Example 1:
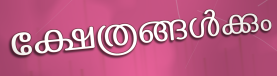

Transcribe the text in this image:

ക്ഷേത്രങ്ങൾക്കും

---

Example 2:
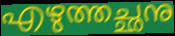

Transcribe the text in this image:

എഴുത്തച്ഛനു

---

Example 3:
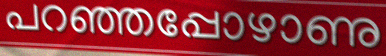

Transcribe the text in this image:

പറഞ്ഞപ്പോഴാണു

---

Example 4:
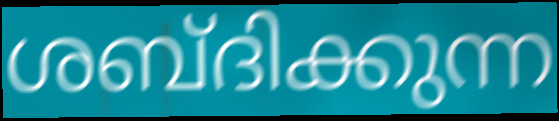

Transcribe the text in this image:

ശബ്ദിക്കുന്ന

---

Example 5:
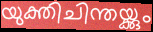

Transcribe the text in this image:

യുക്തിചിന്തയ്ക്കും